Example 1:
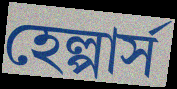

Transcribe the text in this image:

হেল্পার্স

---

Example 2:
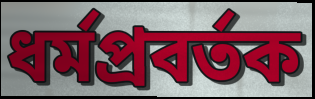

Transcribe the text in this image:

ধর্মপ্রবর্তক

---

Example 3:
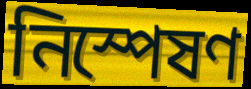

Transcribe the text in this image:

নিস্পেষণ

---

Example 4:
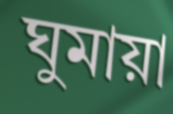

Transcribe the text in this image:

ঘুমায়া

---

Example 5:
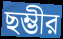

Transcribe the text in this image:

ছম্ভীর